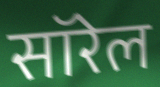
सॉरेल